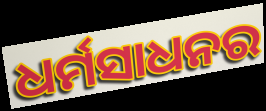
ଧର୍ମସାଧନର